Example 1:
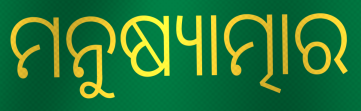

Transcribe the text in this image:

ମନୁଷ୍ୟାତ୍ମାର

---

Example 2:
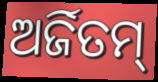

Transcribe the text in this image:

ଅର୍ଜିତମ୍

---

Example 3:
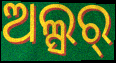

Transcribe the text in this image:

ଅଲ୍ସର୍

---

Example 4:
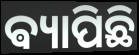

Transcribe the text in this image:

ଵ୍ୟାପିଛି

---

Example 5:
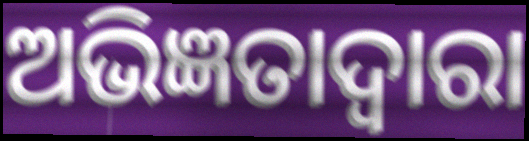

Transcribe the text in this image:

ଅଭିଜ୍ଞତାଦ୍ଵାରା